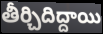
తీర్చిదిద్దాయి